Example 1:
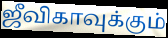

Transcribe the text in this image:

ஜீவிகாவுக்கும்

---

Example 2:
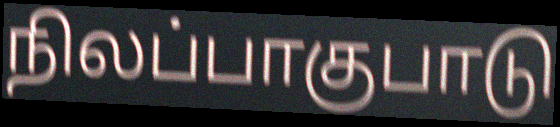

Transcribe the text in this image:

நிலப்பாகுபாடு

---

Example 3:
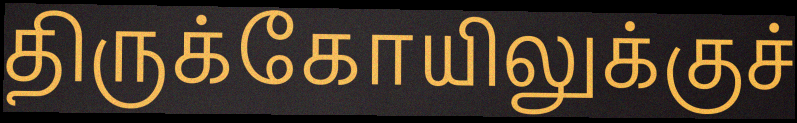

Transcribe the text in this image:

திருக்கோயிலுக்குச்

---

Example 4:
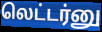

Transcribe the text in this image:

லெட்டர்னு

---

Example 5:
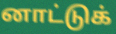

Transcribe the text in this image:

னாட்டுக்